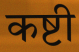
कष्टी